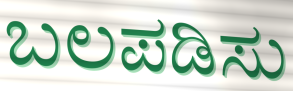
ಬಲಪಡಿಸು